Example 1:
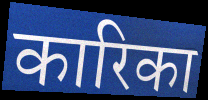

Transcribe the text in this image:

कारिका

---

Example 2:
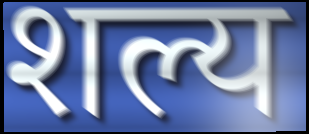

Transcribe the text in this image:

शल्‍य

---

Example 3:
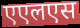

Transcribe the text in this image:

एएलएस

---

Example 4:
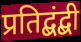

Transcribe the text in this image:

प्रतिद्बंद्बी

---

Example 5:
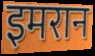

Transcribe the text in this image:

इमरान